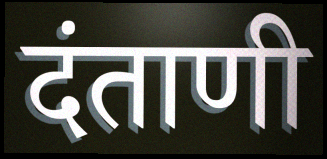
दंताणी